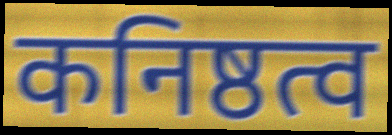
कनिष्ठत्व